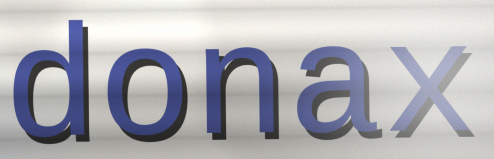
donax